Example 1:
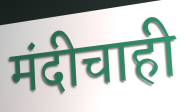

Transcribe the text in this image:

मंदीचाही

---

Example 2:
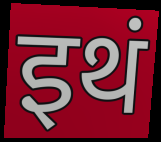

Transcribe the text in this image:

इथं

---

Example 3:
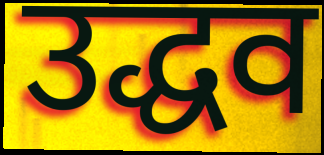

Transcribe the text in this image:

उद्धव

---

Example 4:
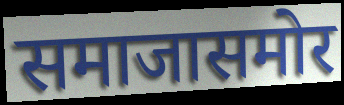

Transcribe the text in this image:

समाजासमोर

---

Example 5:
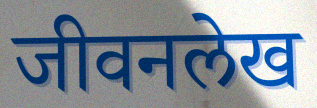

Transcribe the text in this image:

जीवनलेख